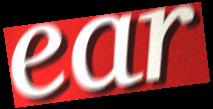
ear